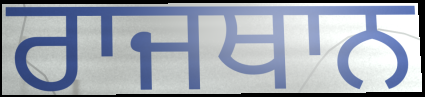
ਰਾਜਥਾਨ